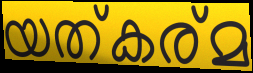
യത്കര്മ